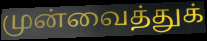
முன்வைத்துக்